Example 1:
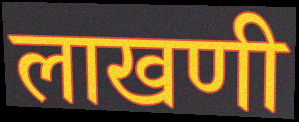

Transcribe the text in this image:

लाखणी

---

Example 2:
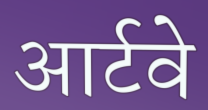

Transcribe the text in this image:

आर्टवे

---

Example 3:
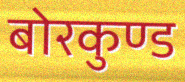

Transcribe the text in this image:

बोरकुण्ड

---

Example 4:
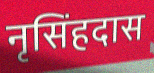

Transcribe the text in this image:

नृसिंहदास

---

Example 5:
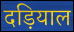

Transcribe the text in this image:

दड़ियाल